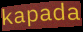
kapada